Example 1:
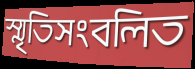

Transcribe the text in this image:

স্মৃতিসংবলিত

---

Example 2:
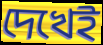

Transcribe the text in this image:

দেখেই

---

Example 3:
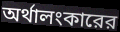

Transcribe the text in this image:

অর্থালংকারের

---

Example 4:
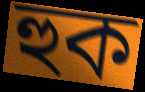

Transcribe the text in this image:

হুক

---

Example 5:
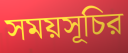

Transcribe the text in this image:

সময়সূচির